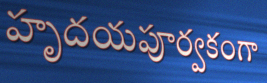
హృదయపూర్వకంగా